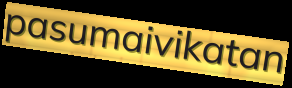
pasumaivikatan